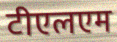
टीएलएम